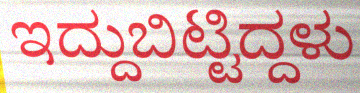
ಇದ್ದುಬಿಟ್ಟಿದ್ದಳು